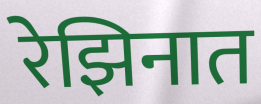
रेझिनात